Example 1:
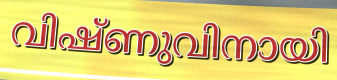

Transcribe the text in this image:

വിഷ്ണുവിനായി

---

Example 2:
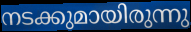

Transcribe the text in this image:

നടക്കുമായിരുന്നു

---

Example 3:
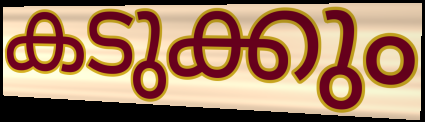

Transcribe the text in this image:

കടുക്കും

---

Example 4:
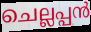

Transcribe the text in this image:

ചെല്ലപ്പൻ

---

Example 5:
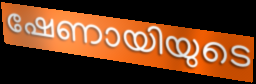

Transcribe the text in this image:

ഷേണായിയുടെ